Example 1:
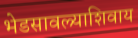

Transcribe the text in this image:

भेडसावल्याशिवाय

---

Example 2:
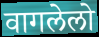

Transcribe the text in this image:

वागलेलो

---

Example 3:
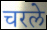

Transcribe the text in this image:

चरले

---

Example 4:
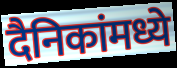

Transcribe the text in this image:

दैनिकांमध्ये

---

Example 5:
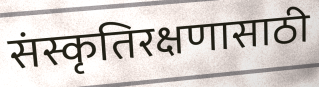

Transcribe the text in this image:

संस्कृतिरक्षणासाठी